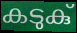
കടുകു്